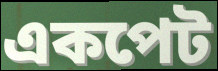
একপেট